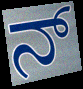
ನ್